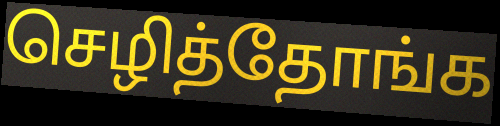
செழித்தோங்க